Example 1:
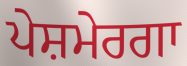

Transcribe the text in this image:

ਪੇਸ਼ਮੇਰਗਾ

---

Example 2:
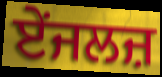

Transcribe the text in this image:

ਏਂਜਲਜ਼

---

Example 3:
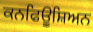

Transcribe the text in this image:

ਕਨਫਿਊਸ਼ਿਅਨ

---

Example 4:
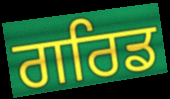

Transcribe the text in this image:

ਗਰਿਡ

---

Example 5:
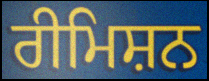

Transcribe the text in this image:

ਰੀਮਿਸ਼ਨ